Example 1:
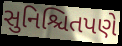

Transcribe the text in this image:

સુનિશ્ચિતપણે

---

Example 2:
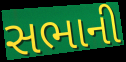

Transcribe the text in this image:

સભાની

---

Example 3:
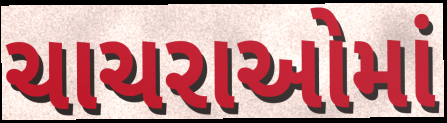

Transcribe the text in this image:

ચાચરાઓમાં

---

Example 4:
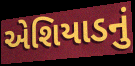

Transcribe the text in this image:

એશિયાડનું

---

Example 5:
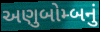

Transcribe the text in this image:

અણુબોમ્બનું